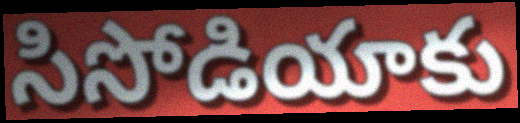
సిసోడియాకు